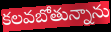
కలవబోతున్నాను